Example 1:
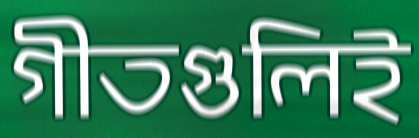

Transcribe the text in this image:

গীতগুলিই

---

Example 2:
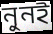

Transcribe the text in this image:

নুনই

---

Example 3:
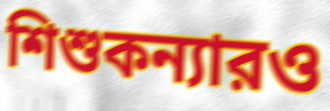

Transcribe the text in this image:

শিশুকন্যারও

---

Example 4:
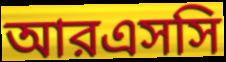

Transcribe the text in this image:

আরএসসি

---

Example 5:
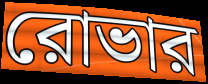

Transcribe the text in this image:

রোভার